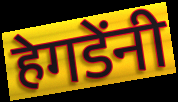
हेगडेंनी